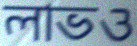
লাভও